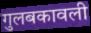
गुलबकावली